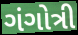
ગંગોત્રી